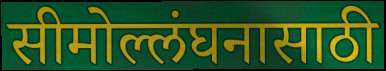
सीमोल्लंघनासाठी